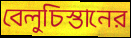
বেলুচিস্তানের